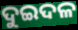
ଦୁଇଦଳ